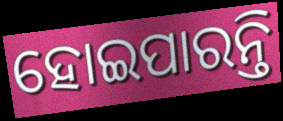
ହୋଇପାରନ୍ତି